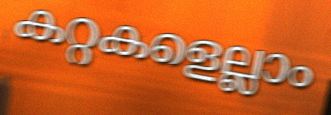
കറ്റകളെല്ലാം